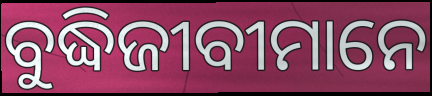
ବୁଦ୍ଧିଜୀବୀମାନେ